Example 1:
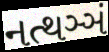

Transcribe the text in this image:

નત્થઞ્ઞં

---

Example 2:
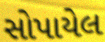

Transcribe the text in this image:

સોપાયેલ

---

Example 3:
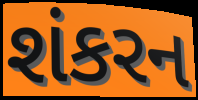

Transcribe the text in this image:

શંકરન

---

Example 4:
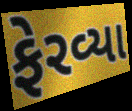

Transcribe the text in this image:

ફેરવ્યા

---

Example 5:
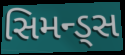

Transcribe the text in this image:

સિમન્ડ્સ